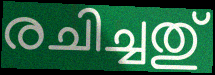
രചിച്ചതു്